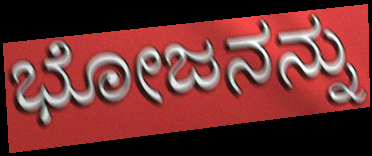
ಭೋಜನನ್ನು